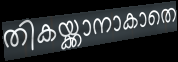
തികയ്ക്കാനാകാതെ